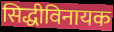
सिद्धीविनायक